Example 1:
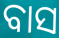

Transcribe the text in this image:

ବାସ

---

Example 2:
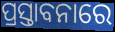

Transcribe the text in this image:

ପ୍ରସ୍ତାବନାରେ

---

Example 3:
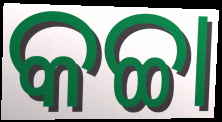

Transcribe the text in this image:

କଚ୍ଚା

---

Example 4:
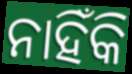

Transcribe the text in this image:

ନାହିଁକି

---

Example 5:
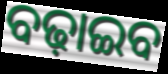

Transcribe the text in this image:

ବଢ଼ାଇବ